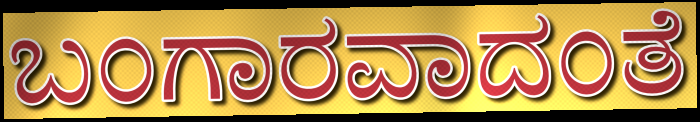
ಬಂಗಾರವಾದಂತೆ